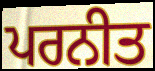
ਪਰਨੀਤ